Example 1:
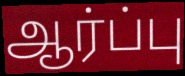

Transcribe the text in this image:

ஆர்ப்பு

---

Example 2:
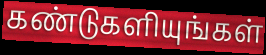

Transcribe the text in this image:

கண்டுகளியுங்கள்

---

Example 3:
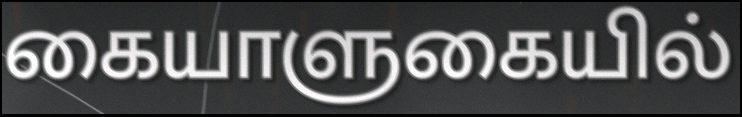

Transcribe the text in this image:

கையாளுகையில்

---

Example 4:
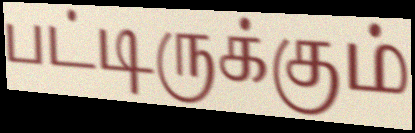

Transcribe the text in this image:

பட்டிருக்கும்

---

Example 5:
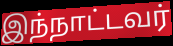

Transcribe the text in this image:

இந்நாட்டவர்